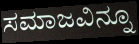
ಸಮಾಜವಿನ್ನೂ